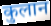
कुलान